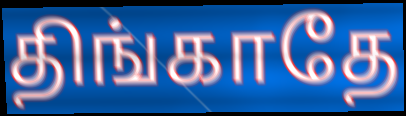
திங்காதே